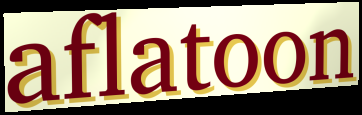
aflatoon